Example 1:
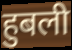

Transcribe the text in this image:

हुबली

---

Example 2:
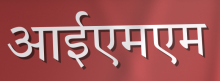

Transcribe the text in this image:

आईएमएम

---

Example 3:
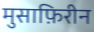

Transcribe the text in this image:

मुसाफ़िरीन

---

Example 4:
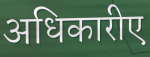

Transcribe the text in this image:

अधिकारीए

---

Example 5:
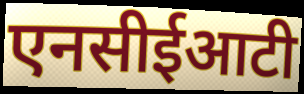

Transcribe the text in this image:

एनसीईआटी